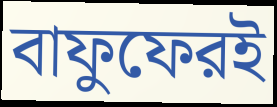
বাফুফেরই